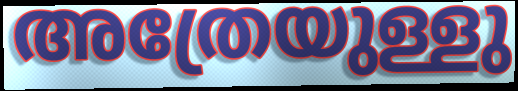
അത്രേയുള്ളു